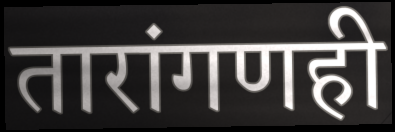
तारांगणही